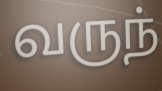
வருந்